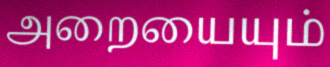
அறையையும்